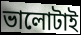
ভালোটাই